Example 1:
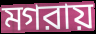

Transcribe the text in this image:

মগরায়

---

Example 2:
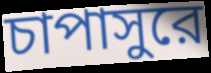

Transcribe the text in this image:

চাপাসুরে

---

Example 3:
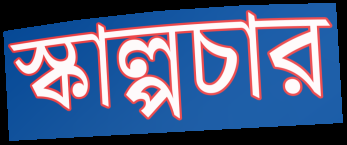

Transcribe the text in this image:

স্কাল্পচার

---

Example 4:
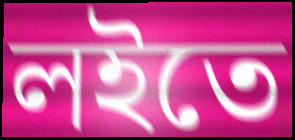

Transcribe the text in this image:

লইতে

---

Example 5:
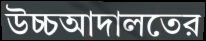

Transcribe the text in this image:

উচ্চআদালতের